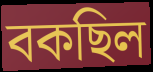
বকছিল